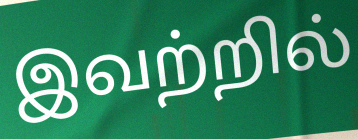
இவற்றில்